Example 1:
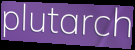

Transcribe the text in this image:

plutarch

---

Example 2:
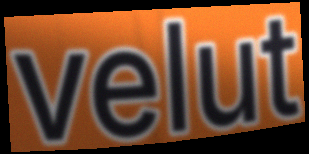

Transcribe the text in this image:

velut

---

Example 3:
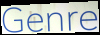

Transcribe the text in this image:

Genre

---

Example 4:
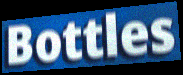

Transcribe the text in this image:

Bottles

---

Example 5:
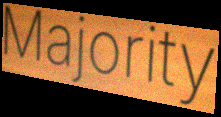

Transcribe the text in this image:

Majority